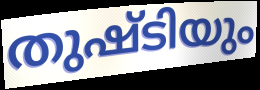
തുഷ്ടിയും